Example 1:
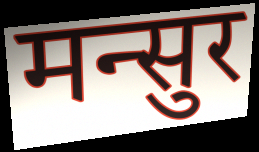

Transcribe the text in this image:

मन्सुर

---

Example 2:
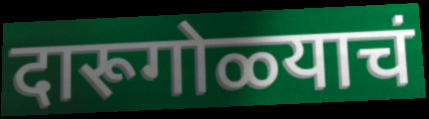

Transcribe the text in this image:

दारूगोळ्याचं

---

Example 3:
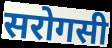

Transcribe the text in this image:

सरोगसी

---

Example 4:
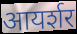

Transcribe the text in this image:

आयर्शर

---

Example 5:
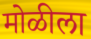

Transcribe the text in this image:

मोळीला